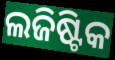
ଲଜିଷ୍ଟିକ